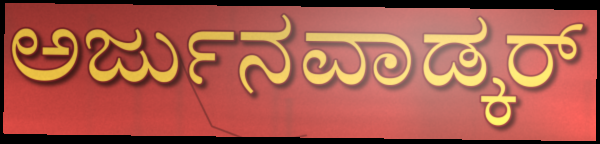
ಅರ್ಜುನವಾಡ್ಕರ್